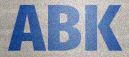
ABK